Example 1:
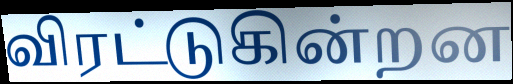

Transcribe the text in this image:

விரட்டுகின்றன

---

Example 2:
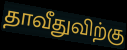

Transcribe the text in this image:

தாவீதுவிற்கு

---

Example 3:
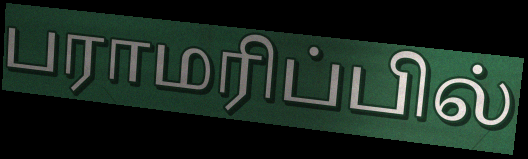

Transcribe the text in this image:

பராமரிப்பில்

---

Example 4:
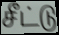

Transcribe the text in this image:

சீட்டு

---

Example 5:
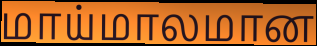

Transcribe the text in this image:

மாய்மாலமான